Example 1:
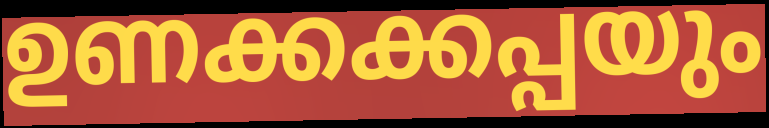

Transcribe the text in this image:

ഉണക്കക്കപ്പയും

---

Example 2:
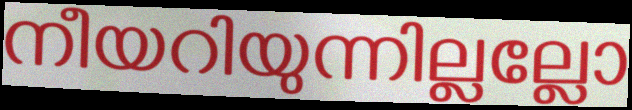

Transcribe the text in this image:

നീയറിയുന്നില്ലല്ലോ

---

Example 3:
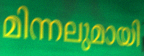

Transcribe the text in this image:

മിന്നലുമായി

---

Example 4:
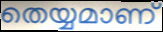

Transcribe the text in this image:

തെയ്യമാണ്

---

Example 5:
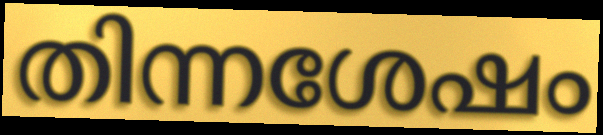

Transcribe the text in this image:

തിന്നശേഷം